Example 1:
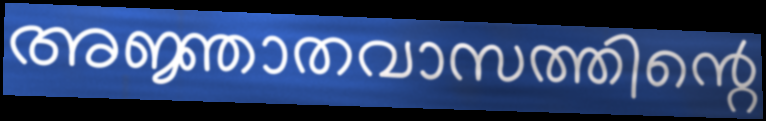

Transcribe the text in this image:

അജ്ഞാതവാസത്തിന്റെ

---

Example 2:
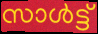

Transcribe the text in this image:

സാൾട്ട്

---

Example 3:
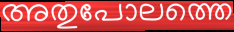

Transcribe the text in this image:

അതുപോലത്തെ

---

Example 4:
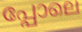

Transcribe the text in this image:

പ്പോലെ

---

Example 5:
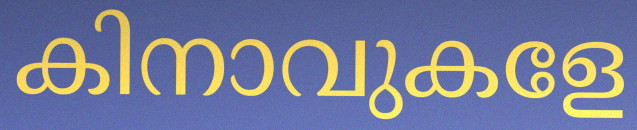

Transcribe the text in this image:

കിനാവുകളേ